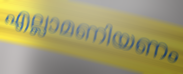
എല്ലാമണിയണം